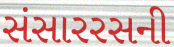
સંસારરસની